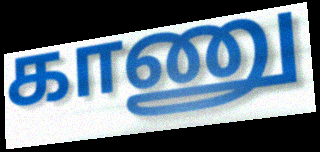
காணு